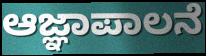
ಆಜ್ಞಾಪಾಲನೆ